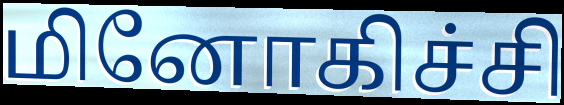
மினோகிச்சி